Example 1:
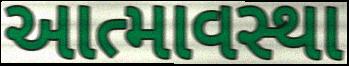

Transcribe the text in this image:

આત્માવસ્થા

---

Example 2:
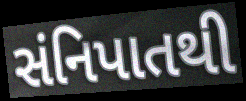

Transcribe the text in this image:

સંનિપાતથી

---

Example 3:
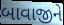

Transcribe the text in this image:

બાવાજીને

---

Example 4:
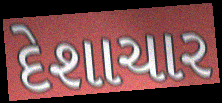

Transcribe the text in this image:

દેશાચાર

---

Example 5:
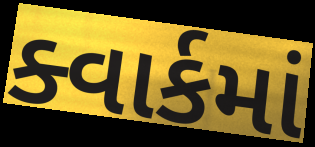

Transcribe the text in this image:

ક્વાર્કમાં